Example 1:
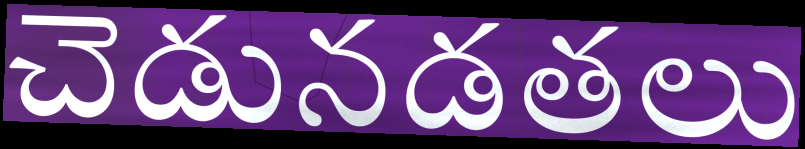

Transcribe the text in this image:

చెడునడతలు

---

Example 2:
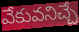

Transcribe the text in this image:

వేకువనిచ్చే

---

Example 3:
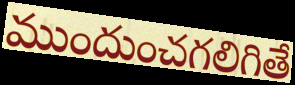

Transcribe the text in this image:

ముందుంచగలిగితే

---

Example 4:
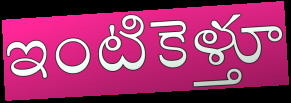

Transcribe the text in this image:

ఇంటికెళ్తూ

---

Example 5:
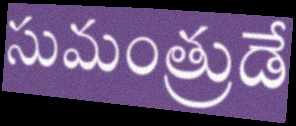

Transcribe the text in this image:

సుమంత్రుడే